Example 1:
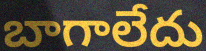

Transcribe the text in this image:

బాగాలేదు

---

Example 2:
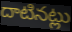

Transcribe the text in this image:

దాటినట్లు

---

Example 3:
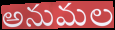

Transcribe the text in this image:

అనుమల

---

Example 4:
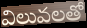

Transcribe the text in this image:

విలువలతో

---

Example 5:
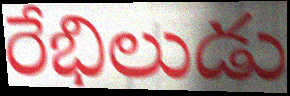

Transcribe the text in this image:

రేభిలుడు